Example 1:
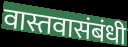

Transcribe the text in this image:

वास्तवासंबंधी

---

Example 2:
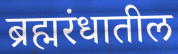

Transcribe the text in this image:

ब्रह्मरंधातील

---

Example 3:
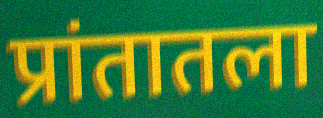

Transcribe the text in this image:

प्रांतातला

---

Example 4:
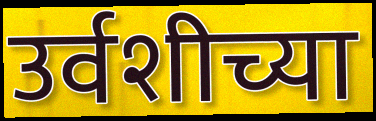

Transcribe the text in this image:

उर्वशीच्या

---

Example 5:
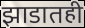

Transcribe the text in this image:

झाडातही